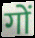
गों